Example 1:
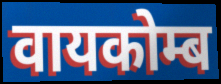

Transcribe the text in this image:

वायकोम्ब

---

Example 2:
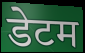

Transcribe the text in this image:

डेटम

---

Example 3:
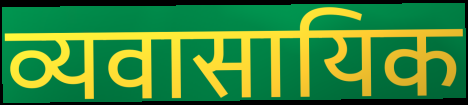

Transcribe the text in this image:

व्यवासायिक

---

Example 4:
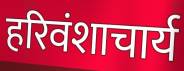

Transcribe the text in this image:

हरिवंशाचार्य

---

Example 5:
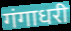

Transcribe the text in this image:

गंगाधरी